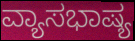
ವ್ಯಾಸಭಾಷ್ಯ